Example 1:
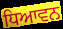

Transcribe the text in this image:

ਧਿਆਵਨ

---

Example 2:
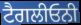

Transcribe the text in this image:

ਟੈਗਲੀਓਨੀ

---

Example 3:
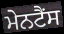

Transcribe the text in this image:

ਮੇਨਟੈਂਸ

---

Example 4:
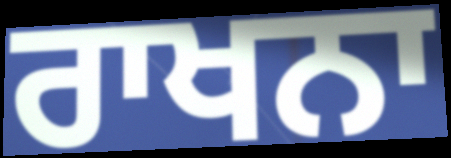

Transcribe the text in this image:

ਰਾਖਨਾ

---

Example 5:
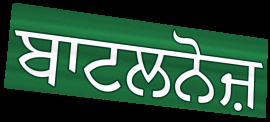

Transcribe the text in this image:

ਬਾਟਲਨੋਜ਼